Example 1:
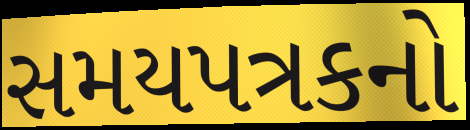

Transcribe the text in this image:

સમયપત્રકનો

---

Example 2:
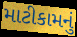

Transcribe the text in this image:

માટીકામનું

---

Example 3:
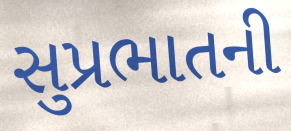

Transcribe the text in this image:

સુપ્રભાતની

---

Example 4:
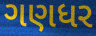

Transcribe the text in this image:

ગણધર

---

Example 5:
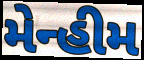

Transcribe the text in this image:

મેન્હીમ